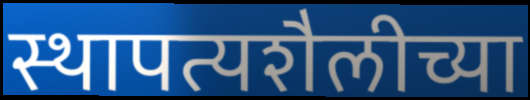
स्थापत्यशैलीच्या